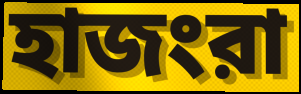
হাজংরা